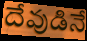
దేవుడినే